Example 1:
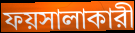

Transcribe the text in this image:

ফয়সালাকারী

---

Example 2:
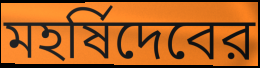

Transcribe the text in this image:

মহর্ষিদেবের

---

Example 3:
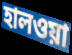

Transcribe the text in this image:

হালওয়া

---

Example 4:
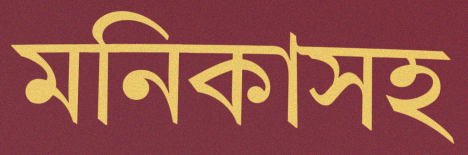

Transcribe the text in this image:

মনিকাসহ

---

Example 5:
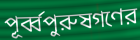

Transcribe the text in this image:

পূর্ব্বপুরুষগণের